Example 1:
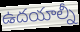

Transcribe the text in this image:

ఉదయాల్నీ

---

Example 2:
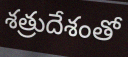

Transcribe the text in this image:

శత్రుదేశంతో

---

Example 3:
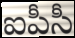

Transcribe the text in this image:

ఐపీసీ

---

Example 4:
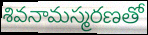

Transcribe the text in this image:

శివనామస్మరణతో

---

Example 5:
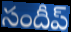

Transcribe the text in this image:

సందీప్